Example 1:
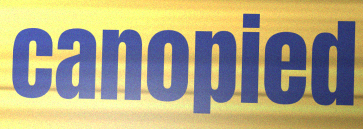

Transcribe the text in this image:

canopied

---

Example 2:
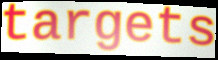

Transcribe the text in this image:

targets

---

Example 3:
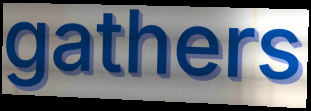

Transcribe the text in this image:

gathers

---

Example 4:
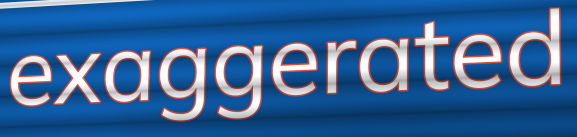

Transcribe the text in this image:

exaggerated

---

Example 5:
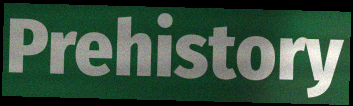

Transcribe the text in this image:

Prehistory